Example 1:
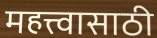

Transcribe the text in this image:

महत्त्वासाठी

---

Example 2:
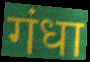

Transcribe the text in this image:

गंधा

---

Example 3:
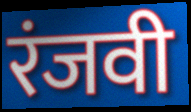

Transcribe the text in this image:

रंजवी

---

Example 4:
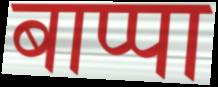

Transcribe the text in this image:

बाप्पा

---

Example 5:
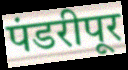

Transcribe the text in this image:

पंडरीपूर